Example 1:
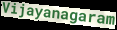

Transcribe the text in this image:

Vijayanagaram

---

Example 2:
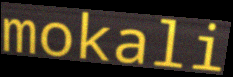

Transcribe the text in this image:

mokali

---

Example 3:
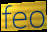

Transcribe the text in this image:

feo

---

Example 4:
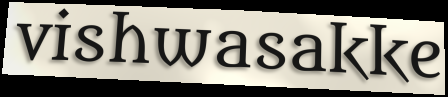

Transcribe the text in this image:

vishwasakke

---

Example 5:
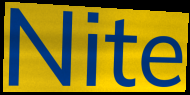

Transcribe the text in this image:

Nite